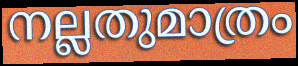
നല്ലതുമാത്രം